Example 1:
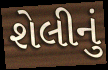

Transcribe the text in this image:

શેલીનું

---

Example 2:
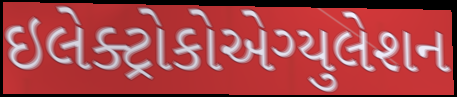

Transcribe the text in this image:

ઇલેક્ટ્રોકોએગ્યુલેશન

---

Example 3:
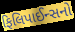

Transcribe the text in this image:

ફિલિપાઈન્સનો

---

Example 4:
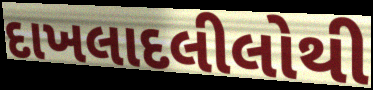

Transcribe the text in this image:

દાખલાદલીલોથી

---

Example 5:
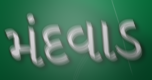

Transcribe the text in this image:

મંદવાડ